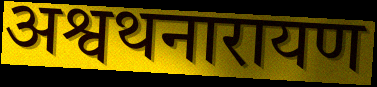
अश्वथनारायण